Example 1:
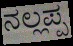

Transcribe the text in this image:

ನಲ್ಲಪ್ಪ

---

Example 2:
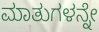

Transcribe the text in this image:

ಮಾತುಗಳನ್ನೇ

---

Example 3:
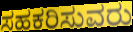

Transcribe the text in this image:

ಸಹಕರಿಸುವರು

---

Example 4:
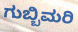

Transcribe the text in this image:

ಗುಬ್ಬಿಮರಿ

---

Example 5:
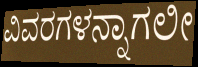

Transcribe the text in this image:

ವಿವರಗಳನ್ನಾಗಲೀ